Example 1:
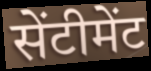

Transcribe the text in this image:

सेंटीमेंट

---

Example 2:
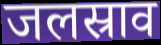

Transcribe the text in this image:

जलस्राव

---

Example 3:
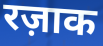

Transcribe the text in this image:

रज़ाक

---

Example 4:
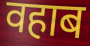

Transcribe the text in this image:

वहाब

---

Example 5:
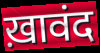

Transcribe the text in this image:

ख़ावंद